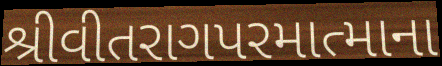
શ્રીવીતરાગપરમાત્માના